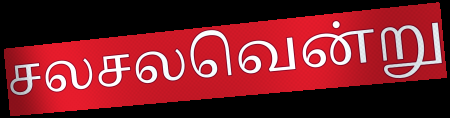
சலசலவென்று